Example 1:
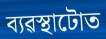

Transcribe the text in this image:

ব্যৱস্থাটোত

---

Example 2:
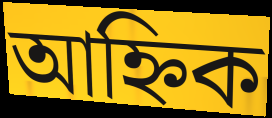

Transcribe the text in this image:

আহ্নিক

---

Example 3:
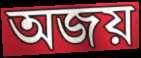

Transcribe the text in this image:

অজয়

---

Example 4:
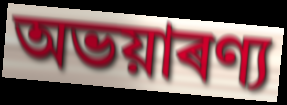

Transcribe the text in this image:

অভয়াৰণ্য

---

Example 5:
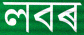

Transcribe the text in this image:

লবৰ